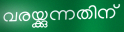
വരയ്ക്കുന്നതിന്